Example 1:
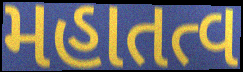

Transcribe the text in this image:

મહાતત્વ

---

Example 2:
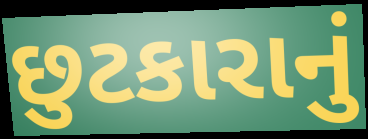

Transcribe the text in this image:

છુટકારાનું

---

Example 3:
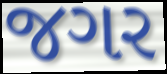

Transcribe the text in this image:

જગર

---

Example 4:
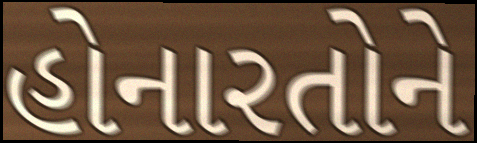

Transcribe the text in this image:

હોનારતોને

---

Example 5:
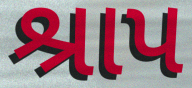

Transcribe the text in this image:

શ્રાપ